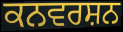
ਕਨਵਰਸ਼ਨ